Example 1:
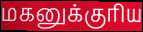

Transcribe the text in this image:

மகனுக்குரிய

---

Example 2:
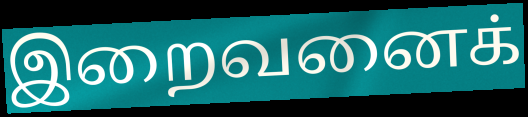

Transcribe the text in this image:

இறைவனைக்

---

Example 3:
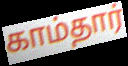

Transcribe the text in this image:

காம்தார்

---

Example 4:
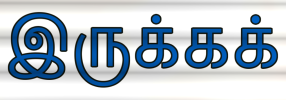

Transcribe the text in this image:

இருக்கக்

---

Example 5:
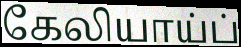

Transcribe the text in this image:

கேலியாய்ப்